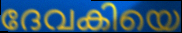
ദേവകിയെ